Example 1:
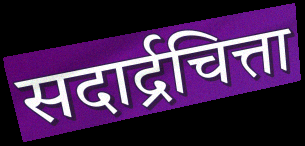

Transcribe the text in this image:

सदार्द्रचित्ता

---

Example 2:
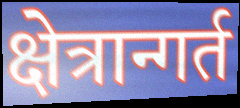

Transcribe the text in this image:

क्षेत्रान्गर्त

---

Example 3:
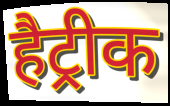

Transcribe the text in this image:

हैट्रीक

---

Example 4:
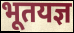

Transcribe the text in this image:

भूतयज्ञ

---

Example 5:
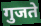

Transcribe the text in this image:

गुजते